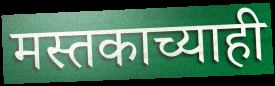
मस्तकाच्याही